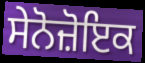
ਸੇਨੋਜ਼ੋਇਕ